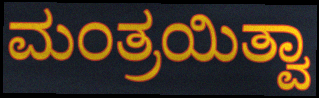
ಮಂತ್ರಯಿತ್ವಾ